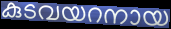
കുടവയറനായ